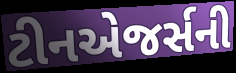
ટીનએજર્સની